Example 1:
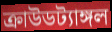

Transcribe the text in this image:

ক্রাউডট্যাঙ্গল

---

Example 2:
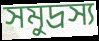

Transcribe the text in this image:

সমুদ্রস্য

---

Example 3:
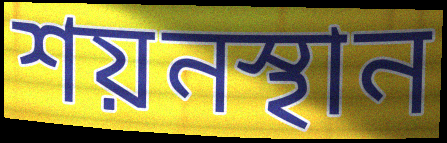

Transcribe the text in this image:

শয়নস্থান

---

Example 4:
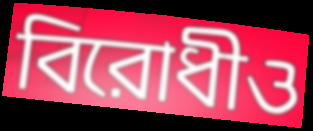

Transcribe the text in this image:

বিরোধীও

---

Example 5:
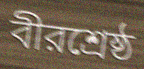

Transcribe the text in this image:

বীরশ্রেষ্ঠ